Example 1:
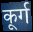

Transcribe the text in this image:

कूर्ग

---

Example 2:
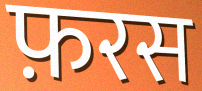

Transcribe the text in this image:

फ़रस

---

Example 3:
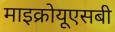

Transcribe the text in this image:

माइक्रोयूएसबी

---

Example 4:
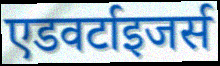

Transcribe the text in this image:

एडवर्टाइजर्स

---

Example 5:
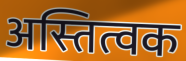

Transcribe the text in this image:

अस्तित्वक